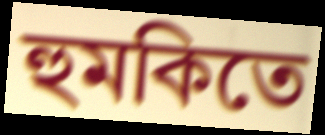
হুমকিতে